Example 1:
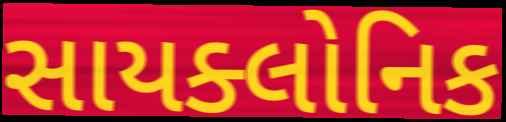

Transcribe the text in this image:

સાયક્લોનિક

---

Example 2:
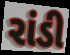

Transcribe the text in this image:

રાંડી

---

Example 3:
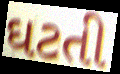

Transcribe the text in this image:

ઘટતી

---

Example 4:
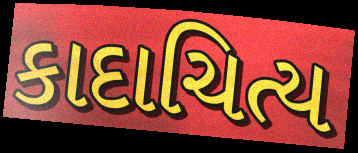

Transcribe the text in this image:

કાદાચિત્ય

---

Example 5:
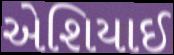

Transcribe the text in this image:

એશિયાઈ